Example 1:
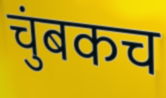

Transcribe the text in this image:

चुंबकच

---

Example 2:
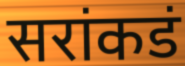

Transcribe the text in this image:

सरांकडं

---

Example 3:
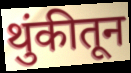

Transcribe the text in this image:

थुंकीतून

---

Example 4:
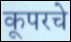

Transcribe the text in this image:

कूपरचे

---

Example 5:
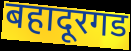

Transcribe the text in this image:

बहादूरगड